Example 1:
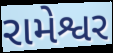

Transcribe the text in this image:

રામેશ્વર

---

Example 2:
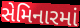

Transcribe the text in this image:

સેમિનારમાં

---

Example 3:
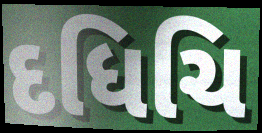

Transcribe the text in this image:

દધિચિ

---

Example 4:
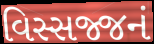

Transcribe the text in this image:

વિસ્સજ્જનં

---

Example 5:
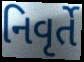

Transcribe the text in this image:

નિવૃર્તે